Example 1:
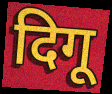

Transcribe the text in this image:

दिगू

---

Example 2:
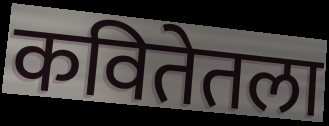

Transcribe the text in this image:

कवितेतला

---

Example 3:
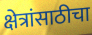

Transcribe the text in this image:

क्षेत्रांसाठीचा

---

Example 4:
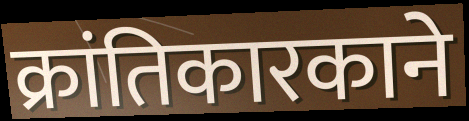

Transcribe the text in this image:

क्रांतिकारकाने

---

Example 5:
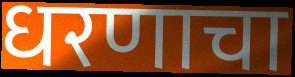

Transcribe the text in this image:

धरणाचा